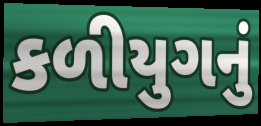
કળીયુગનું